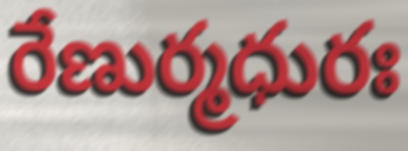
రేణుర్మధురః